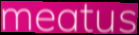
meatus